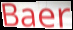
Baer